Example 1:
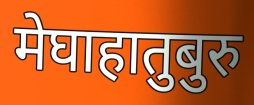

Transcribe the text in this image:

मेघाहातुबुरु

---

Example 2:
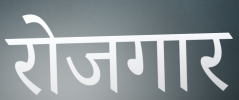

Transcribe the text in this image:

रोजगार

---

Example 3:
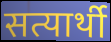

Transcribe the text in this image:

सत्यार्थी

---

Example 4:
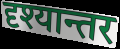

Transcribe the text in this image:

दृश्यान्तर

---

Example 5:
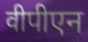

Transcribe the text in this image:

वीपीएन